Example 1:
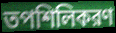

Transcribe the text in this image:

তপশিলিকরণ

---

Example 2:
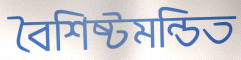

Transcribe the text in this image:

বৈশিষ্টমন্ডিত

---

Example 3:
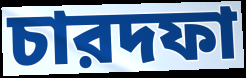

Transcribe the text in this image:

চারদফা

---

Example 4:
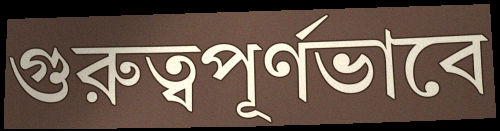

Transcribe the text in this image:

গুরুত্বপূর্ণভাবে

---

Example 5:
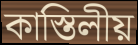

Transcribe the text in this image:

কাস্তিলীয়